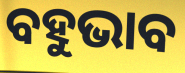
ବହୁଭାବ